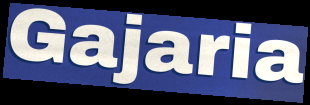
Gajaria